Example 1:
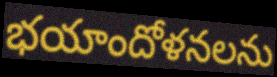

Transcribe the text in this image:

భయాందోళనలను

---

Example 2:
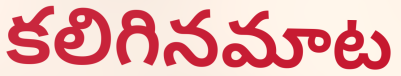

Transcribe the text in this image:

కలిగినమాట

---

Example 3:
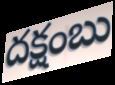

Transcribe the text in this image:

దక్షంబు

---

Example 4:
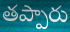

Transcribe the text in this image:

తప్పారు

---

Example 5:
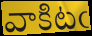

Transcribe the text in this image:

వాకిటఁ